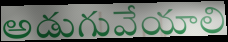
అడుగువేయాలి